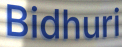
Bidhuri